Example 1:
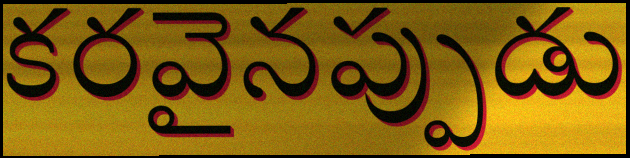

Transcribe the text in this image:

కరవైనప్పుడు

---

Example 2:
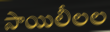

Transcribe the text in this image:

సాయిలీలల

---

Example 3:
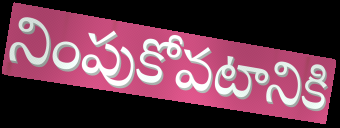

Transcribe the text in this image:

నింపుకోవటానికి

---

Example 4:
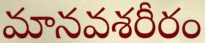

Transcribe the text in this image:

మానవశరీరం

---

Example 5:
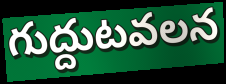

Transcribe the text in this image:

గుద్దుటవలన